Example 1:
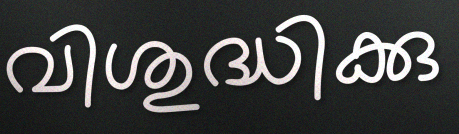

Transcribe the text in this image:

വിശുദ്ധിക്കു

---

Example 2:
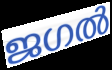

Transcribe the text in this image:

ജഗൽ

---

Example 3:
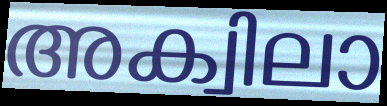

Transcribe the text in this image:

അക്വിലാ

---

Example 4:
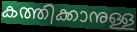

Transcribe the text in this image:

കത്തിക്കാനുള്ള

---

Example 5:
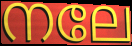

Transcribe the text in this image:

നലേ